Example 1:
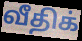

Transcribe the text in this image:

வீதிக்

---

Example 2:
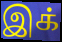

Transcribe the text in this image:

இக்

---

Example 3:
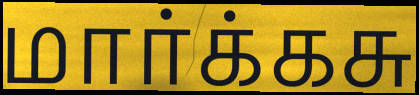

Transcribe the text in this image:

மார்க்கசு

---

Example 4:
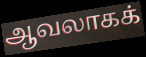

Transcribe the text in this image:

ஆவலாகக்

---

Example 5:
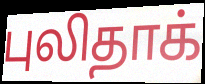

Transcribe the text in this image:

புலிதாக்